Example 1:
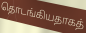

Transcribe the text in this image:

தொடங்கியதாகத்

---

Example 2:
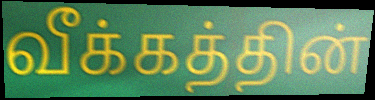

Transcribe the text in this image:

வீக்கத்தின்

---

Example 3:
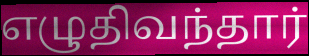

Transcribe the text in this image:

எழுதிவந்தார்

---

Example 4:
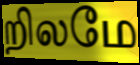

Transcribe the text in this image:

றிலமே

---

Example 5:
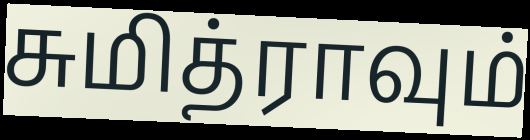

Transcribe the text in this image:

சுமித்ராவும்